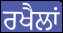
ਰਖੈਲਾਂ